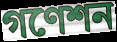
গণেশন